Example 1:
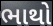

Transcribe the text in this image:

ભાથો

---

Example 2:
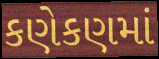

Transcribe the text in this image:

કણેકણમાં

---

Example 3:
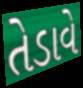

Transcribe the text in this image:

તેડાવે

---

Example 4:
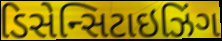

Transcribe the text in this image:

ડિસેન્સિટાઇઝિંગ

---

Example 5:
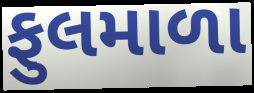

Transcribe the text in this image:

ફુલમાળા